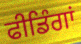
ਫੀਡਿੰਗਾਂ